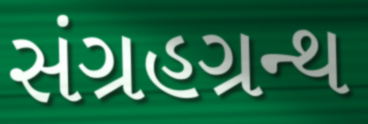
સંગ્રહગ્રન્થ